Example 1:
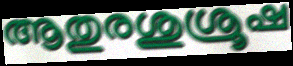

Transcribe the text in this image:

ആതുരശുശ്രൂഷ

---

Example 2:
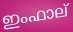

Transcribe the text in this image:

ഇംഫാല്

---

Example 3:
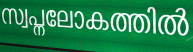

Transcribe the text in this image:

സ്വപ്നലോകത്തിൽ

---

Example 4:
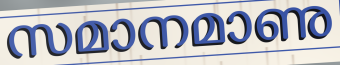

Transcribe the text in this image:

സമാനമാണു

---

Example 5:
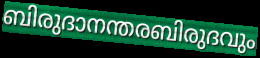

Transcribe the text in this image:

ബിരുദാനന്തരബിരുദവും